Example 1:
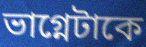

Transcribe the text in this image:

ভাগ্নেটাকে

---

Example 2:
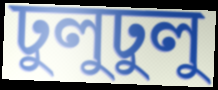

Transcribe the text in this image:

ঢুলুঢুলু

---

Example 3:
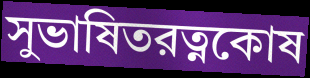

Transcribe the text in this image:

সুভাষিতরত্নকোষ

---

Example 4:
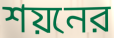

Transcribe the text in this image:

শয়নের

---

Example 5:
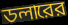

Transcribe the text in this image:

ডলারের